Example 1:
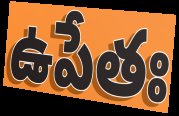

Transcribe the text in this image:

ఉపేతః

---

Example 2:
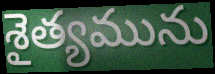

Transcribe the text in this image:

శైత్యమును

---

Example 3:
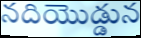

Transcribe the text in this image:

నదియొడ్డున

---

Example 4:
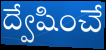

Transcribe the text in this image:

ద్వేషించే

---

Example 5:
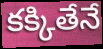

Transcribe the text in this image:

కక్కితేనే